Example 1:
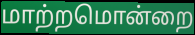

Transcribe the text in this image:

மாற்றமொன்றை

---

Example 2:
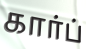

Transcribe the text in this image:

கார்ப்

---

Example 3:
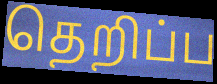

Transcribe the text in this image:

தெறிப்ப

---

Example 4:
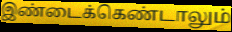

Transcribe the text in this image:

இண்டைக்கெண்டாலும்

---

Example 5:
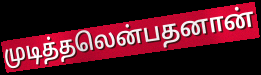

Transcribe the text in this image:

முடித்தலென்பதனான்